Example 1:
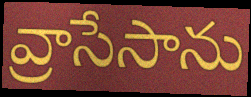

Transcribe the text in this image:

వ్రాసేసాను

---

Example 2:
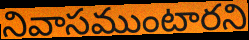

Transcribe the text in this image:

నివాసముంటారని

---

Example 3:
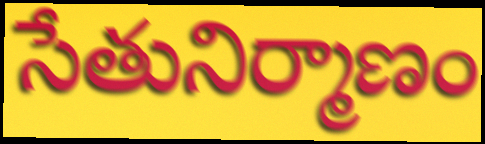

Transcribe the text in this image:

సేతునిర్మాణం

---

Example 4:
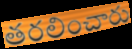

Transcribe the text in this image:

తరలించారు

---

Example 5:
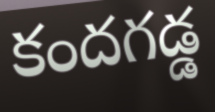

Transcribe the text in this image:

కందగడ్డ